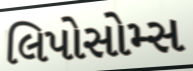
લિપોસોમ્સ